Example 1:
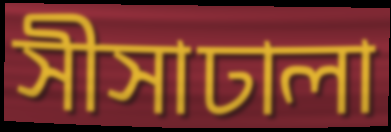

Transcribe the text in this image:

সীসাঢালা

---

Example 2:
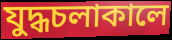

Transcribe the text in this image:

যুদ্ধচলাকালে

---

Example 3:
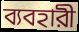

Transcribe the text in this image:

ব্যবহারী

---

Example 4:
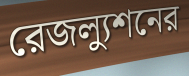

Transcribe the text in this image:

রেজল্যুশনের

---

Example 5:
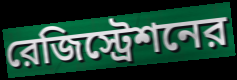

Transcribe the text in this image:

রেজিস্ট্রেশনের